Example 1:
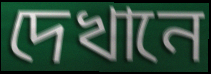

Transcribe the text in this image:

দেখানে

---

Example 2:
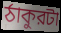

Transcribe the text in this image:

ঠাকুরটা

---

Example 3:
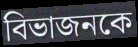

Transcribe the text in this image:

বিভাজনকে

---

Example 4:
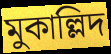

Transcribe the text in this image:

মুকাল্লিদ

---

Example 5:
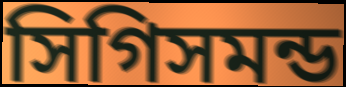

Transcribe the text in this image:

সিগিসমন্ড